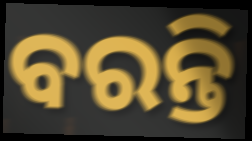
ବରନ୍ତି